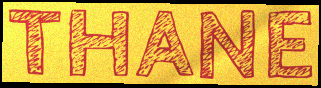
THANE